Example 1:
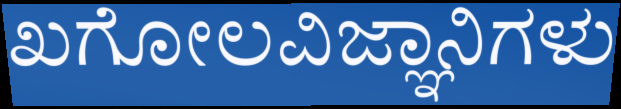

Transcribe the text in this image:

ಖಗೋಲವಿಜ್ಞಾನಿಗಳು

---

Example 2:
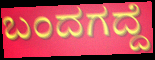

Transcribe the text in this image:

ಬಂದಗದ್ದೆ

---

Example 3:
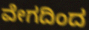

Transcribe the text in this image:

ವೇಗದಿಂದ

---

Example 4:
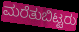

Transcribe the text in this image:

ಮರೆತುಬಿಟ್ಟರು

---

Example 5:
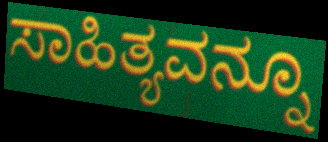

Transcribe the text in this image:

ಸಾಹಿತ್ಯವನ್ನೂ